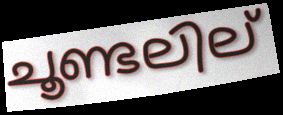
ചൂണ്ടലില്